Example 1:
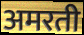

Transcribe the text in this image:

अमरती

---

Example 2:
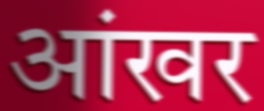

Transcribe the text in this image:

आंखर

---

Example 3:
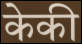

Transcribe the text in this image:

केकी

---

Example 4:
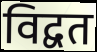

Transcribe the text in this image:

विद्वत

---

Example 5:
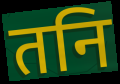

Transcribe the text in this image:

तनि